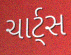
ચાર્ટ્સ